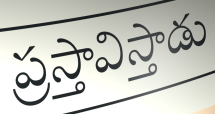
ప్రస్తావిస్తాడు